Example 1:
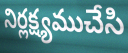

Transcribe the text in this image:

నిర్లక్ష్యముచేసి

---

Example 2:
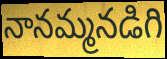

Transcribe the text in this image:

నానమ్మనడిగి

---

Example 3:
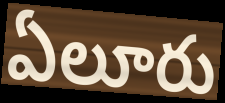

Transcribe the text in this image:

ఏలూరు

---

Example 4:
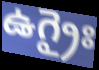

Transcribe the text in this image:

ఉగ్రైః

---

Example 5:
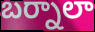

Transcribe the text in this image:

బర్నాలా